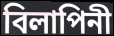
বিলাপিনী